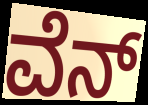
ವೆನ್